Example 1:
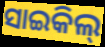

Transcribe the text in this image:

ସାଇକିଲ୍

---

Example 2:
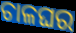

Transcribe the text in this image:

ଚାଳଘର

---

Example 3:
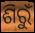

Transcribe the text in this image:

ଶିରୁଁ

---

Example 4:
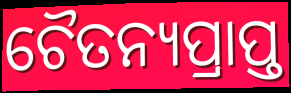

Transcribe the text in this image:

ଚୈତନ୍ୟପ୍ରାପ୍ତ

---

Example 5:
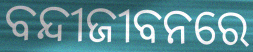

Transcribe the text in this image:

ବନ୍ଦୀଜୀବନରେ